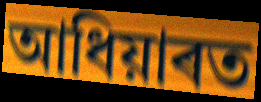
আধিয়াৰত